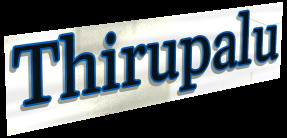
Thirupalu